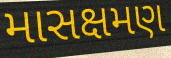
માસક્ષમણ